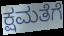
ಕ್ಷಮತೆಗೆ